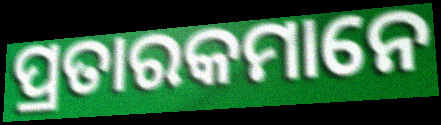
ପ୍ରତାରକମାନେ